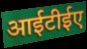
आईटीईए